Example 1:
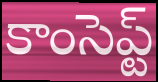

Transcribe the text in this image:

కాంసెప్ట్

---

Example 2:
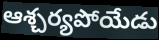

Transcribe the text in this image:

ఆశ్చర్యపోయేడు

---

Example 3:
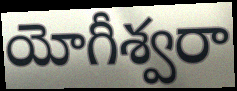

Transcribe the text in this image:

యోగీశ్వరా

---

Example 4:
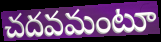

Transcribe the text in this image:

చదవమంటూ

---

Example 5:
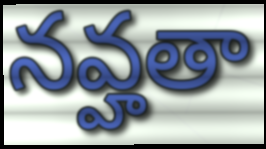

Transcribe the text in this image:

నవ్హతా